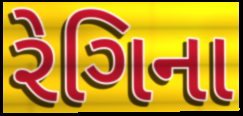
રેગિના